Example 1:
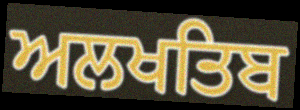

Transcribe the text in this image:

ਅਲਖਤਿਬ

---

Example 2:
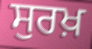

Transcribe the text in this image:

ਸੁਰਖ਼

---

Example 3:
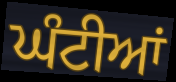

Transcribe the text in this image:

ਘੰਟੀਆਂ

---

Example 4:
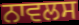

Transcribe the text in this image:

ਨਾਵਲਸ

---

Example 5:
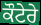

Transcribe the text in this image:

ਕੌਟੇਰੇ